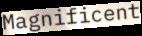
Magnificent